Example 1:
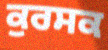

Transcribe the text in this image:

ਕੁਰਸਕ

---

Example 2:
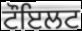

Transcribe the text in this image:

ਟੌਇਲਟ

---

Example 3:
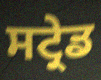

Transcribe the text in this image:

ਸਟ੍ਰੇਡ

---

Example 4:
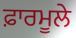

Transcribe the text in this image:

ਫ਼ਾਰਮੂਲੇ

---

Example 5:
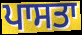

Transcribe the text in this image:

ਪਾਸਤਾ